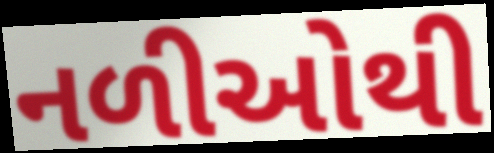
નળીઓથી